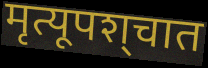
मृत्यूपश्चात